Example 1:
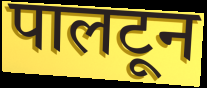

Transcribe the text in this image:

पालटून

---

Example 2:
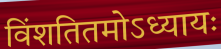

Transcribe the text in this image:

विंशतितमोऽध्यायः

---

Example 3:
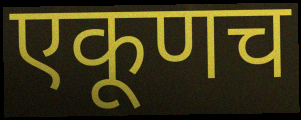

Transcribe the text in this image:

एकूणच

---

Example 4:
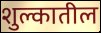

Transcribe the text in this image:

शुल्कातील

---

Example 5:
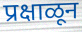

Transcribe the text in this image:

प्रक्षाळून